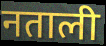
नताली